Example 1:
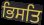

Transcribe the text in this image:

ਭਿਸਤਿ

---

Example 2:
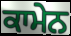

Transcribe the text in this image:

ਕਾਮੇਨ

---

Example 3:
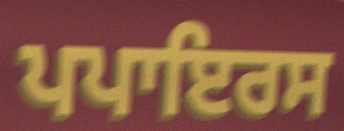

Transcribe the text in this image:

ਪਪਾਇਰਸ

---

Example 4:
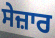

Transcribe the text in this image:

ਸੇਜ਼ਾਰ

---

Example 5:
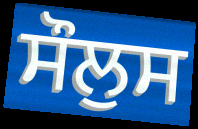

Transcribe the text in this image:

ਸੌਲੁਸ